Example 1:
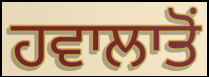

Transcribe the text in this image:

ਹਵਾਲਾਤੋਂ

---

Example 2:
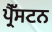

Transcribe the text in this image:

ਪ੍ਰੈੱਸਟਨ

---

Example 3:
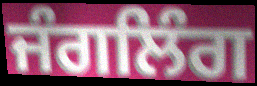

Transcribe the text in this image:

ਜੰਗਲਿੰਗ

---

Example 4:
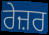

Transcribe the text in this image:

ਰੇਜ਼ਰ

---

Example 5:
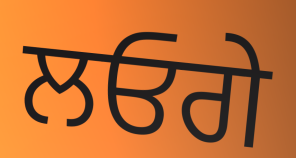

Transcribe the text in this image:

ਲਓਗੇ